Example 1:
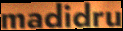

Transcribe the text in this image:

madidru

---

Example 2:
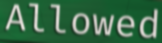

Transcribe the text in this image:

Allowed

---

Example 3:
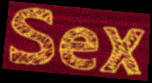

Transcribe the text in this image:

Sex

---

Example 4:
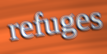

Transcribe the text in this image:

refuges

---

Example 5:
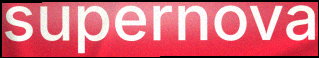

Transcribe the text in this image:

supernova